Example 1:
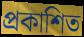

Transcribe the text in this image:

প্রকাশিত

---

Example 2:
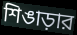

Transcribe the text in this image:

শিঙাড়ার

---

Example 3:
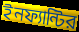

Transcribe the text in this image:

ইনফ্যান্টির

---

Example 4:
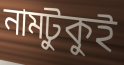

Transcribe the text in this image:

নামটুকুই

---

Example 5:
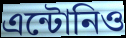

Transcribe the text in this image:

এন্টোনিও